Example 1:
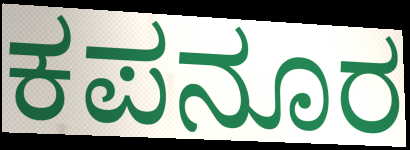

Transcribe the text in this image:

ಕಪನೂರ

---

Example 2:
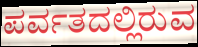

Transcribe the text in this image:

ಪರ್ವತದಲ್ಲಿರುವ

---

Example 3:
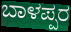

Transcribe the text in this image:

ಬಾಳಪ್ಪರ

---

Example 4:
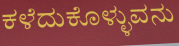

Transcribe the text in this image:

ಕಳೆದುಕೊಳ್ಳುವನು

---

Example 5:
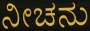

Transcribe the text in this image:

ನೀಚನು